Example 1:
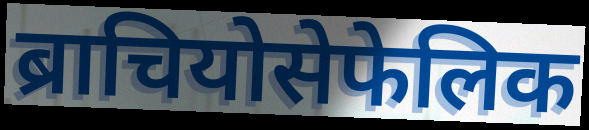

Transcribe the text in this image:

ब्राचियोसेफेलिक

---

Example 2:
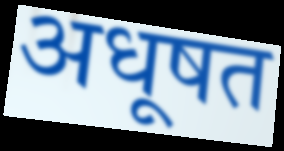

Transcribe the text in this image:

अधूषत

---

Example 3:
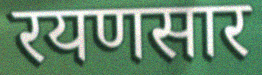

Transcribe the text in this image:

रयणसार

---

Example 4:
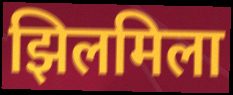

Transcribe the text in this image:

झिलमिला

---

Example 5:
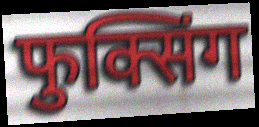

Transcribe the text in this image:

फुक्सिंग